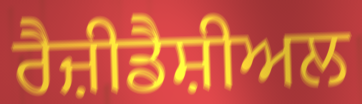
ਰੈਜ਼ੀਡੈਸ਼ੀਅਲ